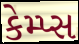
કેમ્પ્સ